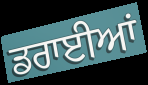
ਡਰਾਈਆਂ